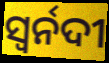
ସ୍ୱର୍ନଦୀ